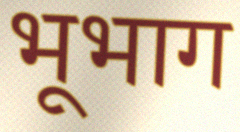
भूभाग